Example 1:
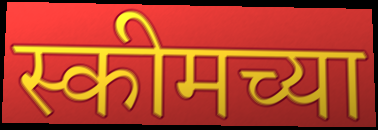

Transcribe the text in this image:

स्कीमच्या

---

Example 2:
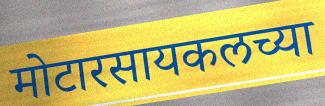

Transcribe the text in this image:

मोटारसायकलच्या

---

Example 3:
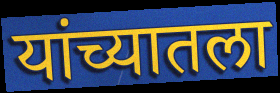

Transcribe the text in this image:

यांच्यातला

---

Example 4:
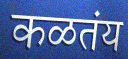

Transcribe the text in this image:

कळतंय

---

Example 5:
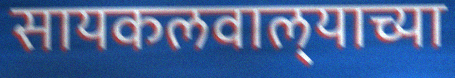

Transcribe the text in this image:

सायकलवाल्याच्या